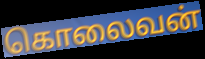
கொலைவன்